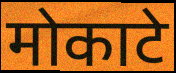
मोकाटे